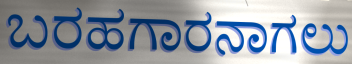
ಬರಹಗಾರನಾಗಲು